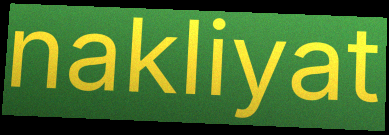
nakliyat